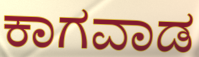
ಕಾಗವಾಡ